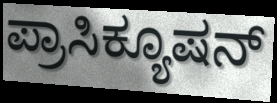
ಪ್ರಾಸಿಕ್ಯೂಷನ್